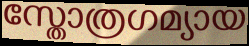
സ്തോത്രഗമ്യായ